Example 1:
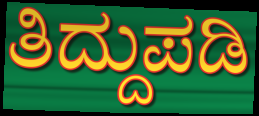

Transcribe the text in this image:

ತಿದ್ದುಪಡಿ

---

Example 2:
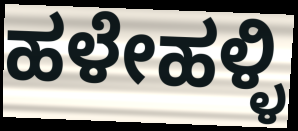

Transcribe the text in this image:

ಹಳೇಹಳ್ಳಿ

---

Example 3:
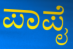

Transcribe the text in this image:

ಪಾಪೈ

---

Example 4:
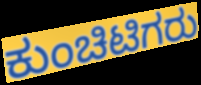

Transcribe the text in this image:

ಕುಂಚಿಟಿಗರು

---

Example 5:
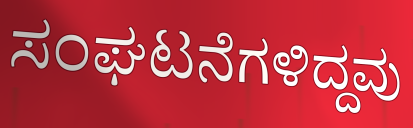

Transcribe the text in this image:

ಸಂಘಟನೆಗಳಿದ್ದವು